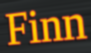
Finn